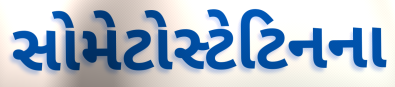
સોમેટોસ્ટેટિનના